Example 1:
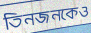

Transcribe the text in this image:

তিনজনকেও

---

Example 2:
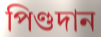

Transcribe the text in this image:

পিণ্ডদান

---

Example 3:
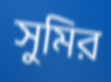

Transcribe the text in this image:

সুমির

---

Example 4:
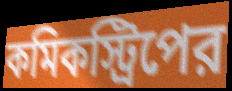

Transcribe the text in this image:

কমিকস্ট্রিপের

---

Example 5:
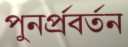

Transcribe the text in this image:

পুনর্প্রবর্তন